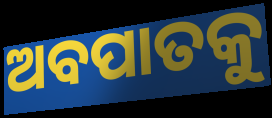
ଅବପାତକୁ